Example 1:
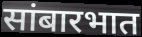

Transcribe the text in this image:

सांबारभात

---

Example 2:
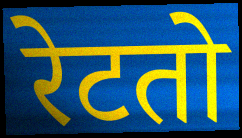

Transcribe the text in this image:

रेटतो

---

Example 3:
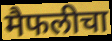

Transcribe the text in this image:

मैफलीचा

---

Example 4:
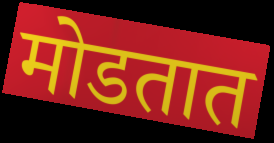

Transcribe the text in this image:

मोडतात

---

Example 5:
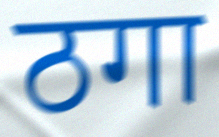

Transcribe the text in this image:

ठगा